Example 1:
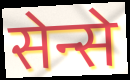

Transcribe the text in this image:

सेन्से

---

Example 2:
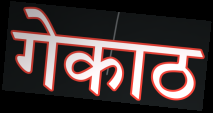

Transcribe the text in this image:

गेकाठ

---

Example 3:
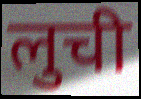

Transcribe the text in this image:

लुची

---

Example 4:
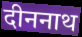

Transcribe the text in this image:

दीननाथ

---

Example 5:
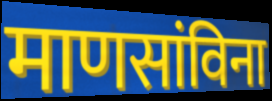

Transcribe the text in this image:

माणसांविना